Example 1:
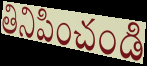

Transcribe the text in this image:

తినిపించండి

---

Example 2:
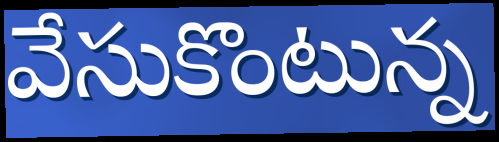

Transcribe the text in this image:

వేసుకొంటున్న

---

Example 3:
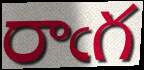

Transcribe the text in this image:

రాఁగ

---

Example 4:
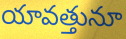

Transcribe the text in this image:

యావత్తునూ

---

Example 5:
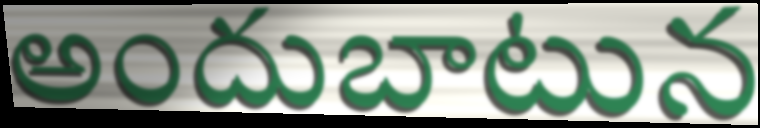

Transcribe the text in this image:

అందుబాటున